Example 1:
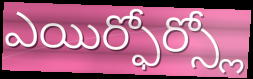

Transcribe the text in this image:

ఎయిర్ఫోర్స్లో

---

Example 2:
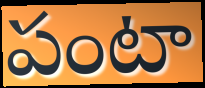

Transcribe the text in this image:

పంటా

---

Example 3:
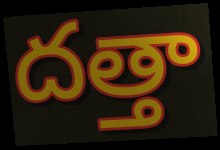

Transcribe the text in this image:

దత్తా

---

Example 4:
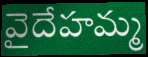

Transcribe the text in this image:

వైదేహమ్మ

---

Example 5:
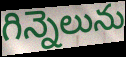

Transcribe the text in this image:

గిన్నెలును